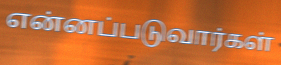
என்னப்படுவார்கள்